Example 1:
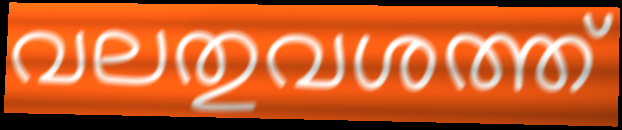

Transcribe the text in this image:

വലതുവശത്ത്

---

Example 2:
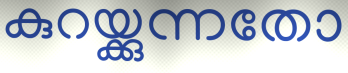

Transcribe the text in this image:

കുറയ്ക്കുന്നതോ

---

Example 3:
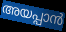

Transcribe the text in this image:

അയപ്പാൻ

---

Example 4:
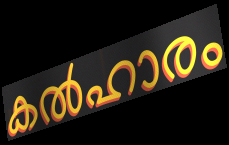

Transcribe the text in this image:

കൽഹാരം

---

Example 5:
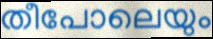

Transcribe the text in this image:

തീപോലെയും